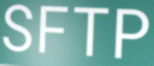
SFTP